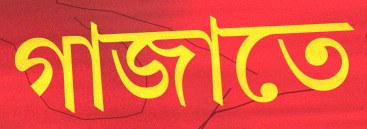
গাজাতে